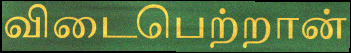
விடைபெற்றான்